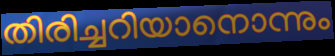
തിരിച്ചറിയാനൊന്നും